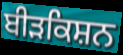
ਬੀੜਕਿਸ਼ਨ